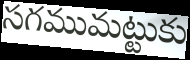
సగముమట్టుకు